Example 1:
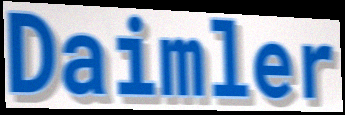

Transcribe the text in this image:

Daimler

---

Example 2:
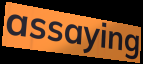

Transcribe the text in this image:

assaying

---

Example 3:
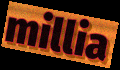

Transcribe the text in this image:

millia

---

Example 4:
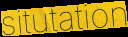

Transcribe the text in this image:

situtation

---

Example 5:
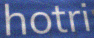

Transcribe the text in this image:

hotri